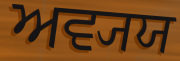
ਅਵ੍ਯਯ